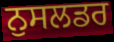
ਨੁਸਲਡਰ